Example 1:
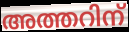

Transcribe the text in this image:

അത്തറിന്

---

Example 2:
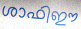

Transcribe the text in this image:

ശാഫിഈ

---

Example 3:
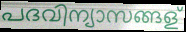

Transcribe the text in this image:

പദവിന്യാസങ്ങള്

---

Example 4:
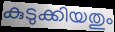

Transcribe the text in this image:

കുടുക്കിയതും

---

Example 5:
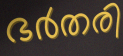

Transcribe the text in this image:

ഭർതരി